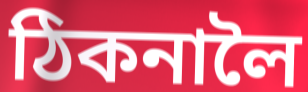
ঠিকনালৈ